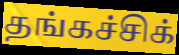
தங்கச்சிக்